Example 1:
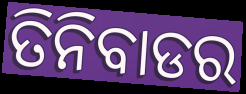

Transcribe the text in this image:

ତିନିବାଡର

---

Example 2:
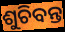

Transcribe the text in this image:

ଶୁଚିବନ୍ତ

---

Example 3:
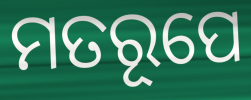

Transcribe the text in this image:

ମତରୂପେ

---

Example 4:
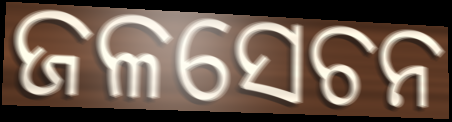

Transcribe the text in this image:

ଜଳସେଚନ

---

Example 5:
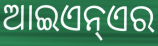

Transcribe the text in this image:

ଆଇଏନ୍ଏର